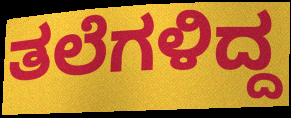
ತಲೆಗಳಿದ್ದ